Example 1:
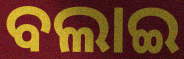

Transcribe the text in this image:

ବଲାଇ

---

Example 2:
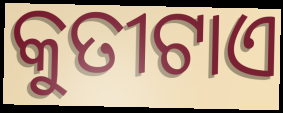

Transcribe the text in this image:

କୁତୀଟାଏ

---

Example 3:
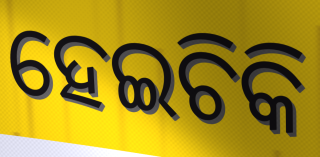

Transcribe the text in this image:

ହେଇଚିକି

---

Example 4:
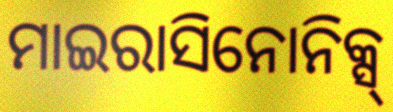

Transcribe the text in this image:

ମାଇରାସିନୋନିକ୍ସ୍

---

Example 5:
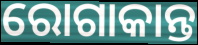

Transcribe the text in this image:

ରୋଗାକାନ୍ତ